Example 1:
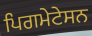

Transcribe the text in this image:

ਪਿਗਮੇਟੇਸਨ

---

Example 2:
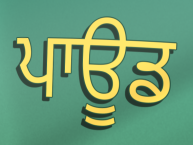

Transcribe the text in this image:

ਪਾਊਡ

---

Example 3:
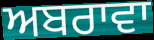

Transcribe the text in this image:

ਅਬਰਾਵਾ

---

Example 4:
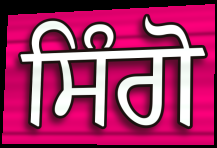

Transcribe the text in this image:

ਸਿੰਗੋ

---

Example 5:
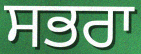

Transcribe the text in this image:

ਸਭਰਾ